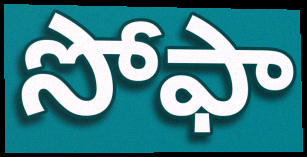
సోఫా